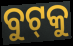
ବୁଟ୍‌କୁ